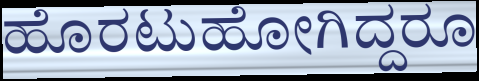
ಹೊರಟುಹೋಗಿದ್ದರೂ